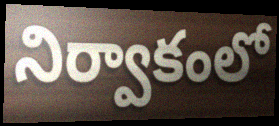
నిర్వాకంలో